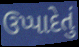
ઉપ્પાદેતું